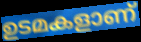
ഉടമകളാണ്